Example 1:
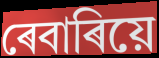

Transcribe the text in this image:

ৰেবাৰিয়ে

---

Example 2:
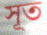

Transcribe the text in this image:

সূত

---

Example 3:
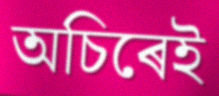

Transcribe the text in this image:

অচিৰেই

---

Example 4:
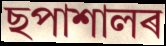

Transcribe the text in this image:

ছপাশালৰ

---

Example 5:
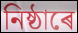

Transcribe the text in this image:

নিষ্ঠাৰে